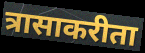
त्रासाकरीता